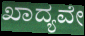
ಖಾದ್ಯವೇ